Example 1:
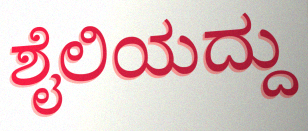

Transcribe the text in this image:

ಶೈಲಿಯದ್ದು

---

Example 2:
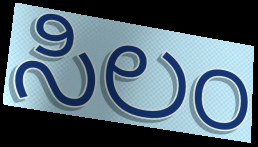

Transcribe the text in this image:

ಸಿಲಂ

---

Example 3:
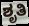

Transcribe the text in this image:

ಶೃತಿ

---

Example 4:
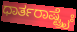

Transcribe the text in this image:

ಧಾರ್ತರಾಷ್ಟ್ರೈಃ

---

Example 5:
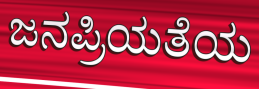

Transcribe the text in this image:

ಜನಪ್ರಿಯತೆಯ